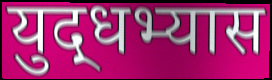
युद्धभ्यास